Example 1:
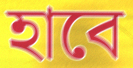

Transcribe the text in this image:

হাবে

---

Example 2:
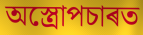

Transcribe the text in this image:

অস্ত্ৰোপচাৰত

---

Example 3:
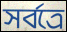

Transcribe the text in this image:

সৰ্বত্ৰে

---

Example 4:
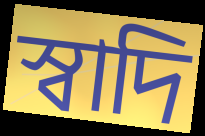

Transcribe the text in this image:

স্বাদি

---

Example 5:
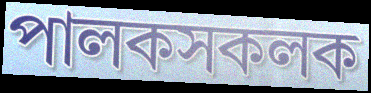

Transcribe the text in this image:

পালকসকলক